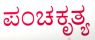
ಪಂಚಕೃತ್ಯ